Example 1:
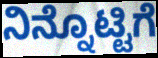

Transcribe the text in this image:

ನಿನ್ನೊಟ್ಟಿಗೆ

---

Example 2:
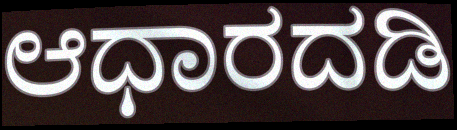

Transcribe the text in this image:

ಆಧಾರದಡಿ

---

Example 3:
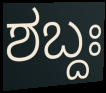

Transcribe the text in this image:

ಶಬ್ದಃ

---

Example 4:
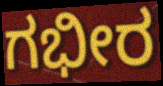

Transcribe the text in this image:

ಗಭೀರ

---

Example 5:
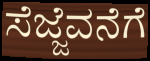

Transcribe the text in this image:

ಸೆಜ್ಜೆವನೆಗೆ